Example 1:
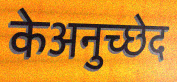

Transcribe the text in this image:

केअनुच्छेद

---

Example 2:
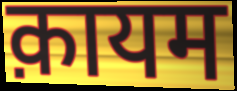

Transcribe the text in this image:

क़ायम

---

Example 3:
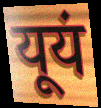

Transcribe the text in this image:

यूयं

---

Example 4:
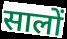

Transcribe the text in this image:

सालों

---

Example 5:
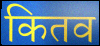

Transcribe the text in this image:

कितव